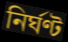
নির্ঘণ্ট